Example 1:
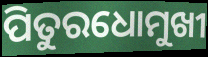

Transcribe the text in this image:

ପିତୁରଧୋମୁଖୀ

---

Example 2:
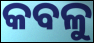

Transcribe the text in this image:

କବଳୁ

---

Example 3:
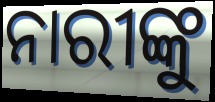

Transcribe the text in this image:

ନାରୀଙ୍କୁ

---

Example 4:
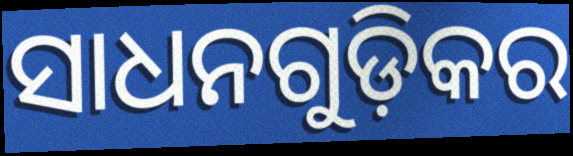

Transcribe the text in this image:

ସାଧନଗୁଡ଼ିକର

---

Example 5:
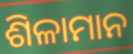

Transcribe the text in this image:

ଶିଳାମାନ